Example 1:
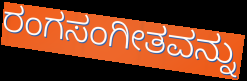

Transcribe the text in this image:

ರಂಗಸಂಗೀತವನ್ನು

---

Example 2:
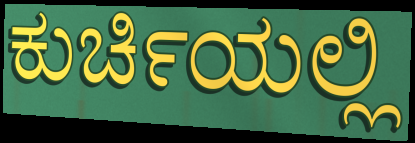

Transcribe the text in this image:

ಕುರ್ಚಿಯಲ್ಲಿ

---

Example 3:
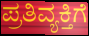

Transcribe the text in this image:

ಪ್ರತಿವ್ಯಕ್ತಿಗೆ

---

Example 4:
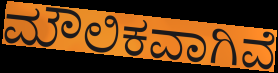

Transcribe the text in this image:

ಮೌಲಿಕವಾಗಿವೆ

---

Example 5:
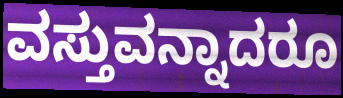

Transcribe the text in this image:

ವಸ್ತುವನ್ನಾದರೂ